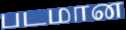
படமான